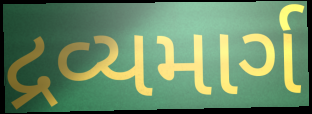
દ્રવ્યમાર્ગ